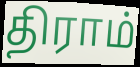
திராம்